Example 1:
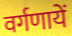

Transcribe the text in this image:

वर्गणायें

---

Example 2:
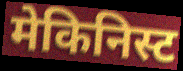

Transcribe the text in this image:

मेकिनिस्ट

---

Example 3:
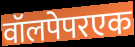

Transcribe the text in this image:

वॉलपेपरएक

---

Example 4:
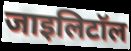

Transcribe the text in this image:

जाइलिटॉल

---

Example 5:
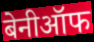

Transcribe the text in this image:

बेनीऑफ